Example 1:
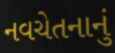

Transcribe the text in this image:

નવચેતનાનું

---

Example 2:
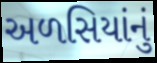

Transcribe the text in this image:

અળસિયાંનું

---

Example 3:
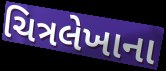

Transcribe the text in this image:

ચિત્રલેખાના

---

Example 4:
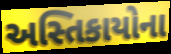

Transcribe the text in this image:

અસ્તિકાયોના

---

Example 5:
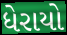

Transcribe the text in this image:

ધેરાયો